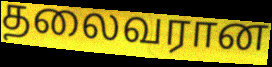
தலைவரான